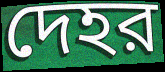
দেহর